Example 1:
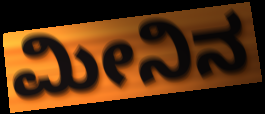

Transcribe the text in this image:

ಮೀನಿನ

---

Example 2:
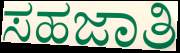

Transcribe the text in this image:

ಸಹಜಾತಿ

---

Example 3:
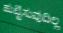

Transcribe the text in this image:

ಹುಟ್ಟಿಸುವುದಿಲ್ಲ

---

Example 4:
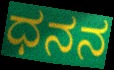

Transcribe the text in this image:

ಧನನ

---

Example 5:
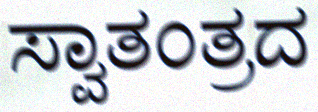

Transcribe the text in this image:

ಸ್ವಾತಂತ್ರದ